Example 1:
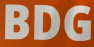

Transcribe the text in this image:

BDG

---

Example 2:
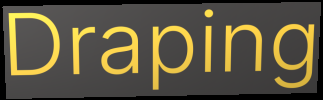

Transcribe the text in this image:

Draping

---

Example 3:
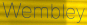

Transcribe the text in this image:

Wembley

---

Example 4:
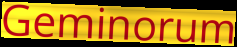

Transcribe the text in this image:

Geminorum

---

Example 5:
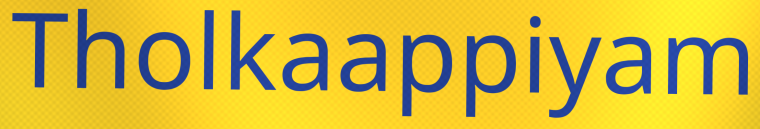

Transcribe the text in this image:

Tholkaappiyam